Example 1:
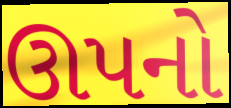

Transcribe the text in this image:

ઊપનો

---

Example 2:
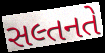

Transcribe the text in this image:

સલ્તનતે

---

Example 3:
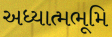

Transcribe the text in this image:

અધ્યાત્મભૂમિ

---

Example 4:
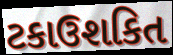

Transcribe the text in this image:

ટકાઉશકિત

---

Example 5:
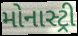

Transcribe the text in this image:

મોનાસ્ટ્રી